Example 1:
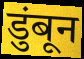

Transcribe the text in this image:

डुंबून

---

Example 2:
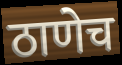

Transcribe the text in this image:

ठाणेच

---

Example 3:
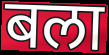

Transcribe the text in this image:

बला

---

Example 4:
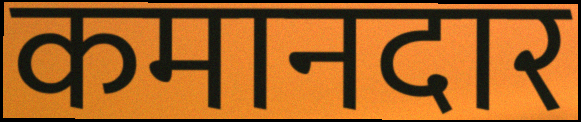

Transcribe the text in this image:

कमानदार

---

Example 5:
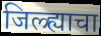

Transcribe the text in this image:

जिल्ह्याचा